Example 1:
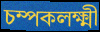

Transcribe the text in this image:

চম্পকলক্ষ্মী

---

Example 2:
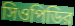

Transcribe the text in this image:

সিওপিডির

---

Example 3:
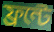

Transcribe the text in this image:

ফ্রন্টে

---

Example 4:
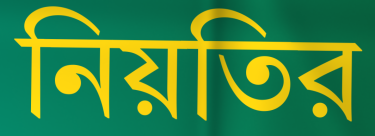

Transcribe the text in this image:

নিয়তির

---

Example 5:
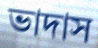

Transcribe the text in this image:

ভাদাস